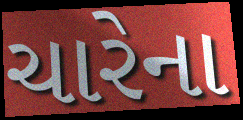
ચારેના